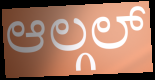
ಆಲ್ಗಲ್